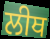
ਲੀਥ